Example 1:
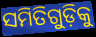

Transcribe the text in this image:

ସମିତିଗୁଡ଼ିକୁ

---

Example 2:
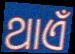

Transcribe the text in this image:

ଥାଏଁ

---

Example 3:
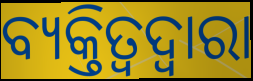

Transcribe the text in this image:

ବ୍ୟକ୍ତିତ୍ୱଦ୍ୱାରା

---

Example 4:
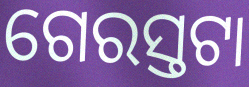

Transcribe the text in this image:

ଗେରସ୍ତଟା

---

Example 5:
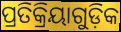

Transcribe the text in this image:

ପ୍ରତିକ୍ରିୟାଗୁଡ଼ିକ